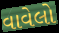
વાવેલો